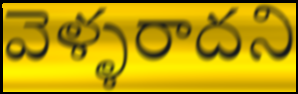
వెళ్ళరాదని